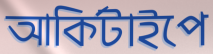
আর্কিটাইপে